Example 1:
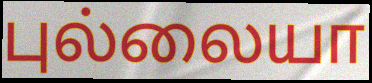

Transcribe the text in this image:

புல்லையா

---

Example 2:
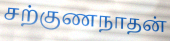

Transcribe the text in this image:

சற்குணநாதன்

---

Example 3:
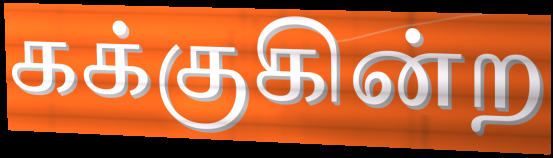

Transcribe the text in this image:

கக்குகின்ற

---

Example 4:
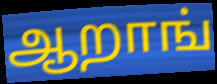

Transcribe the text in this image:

ஆறாங்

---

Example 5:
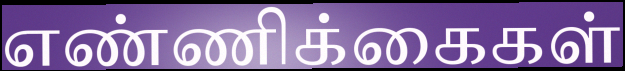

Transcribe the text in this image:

எண்ணிக்கைகள்